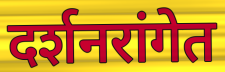
दर्शनरांगेत